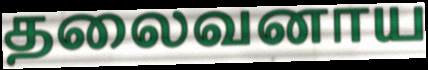
தலைவனாய